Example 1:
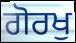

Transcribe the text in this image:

ਗੋਰਖੁ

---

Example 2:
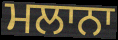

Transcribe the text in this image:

ਮਲਾਨਾ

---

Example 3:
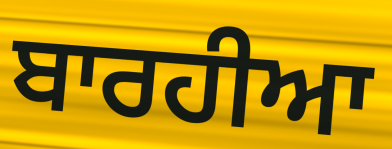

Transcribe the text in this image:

ਬਾਰਹੀਆ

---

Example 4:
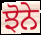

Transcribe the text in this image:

ਝੋਨੇ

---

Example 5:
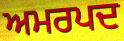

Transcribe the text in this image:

ਅਮਰਪਦ